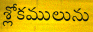
శ్లోకములును